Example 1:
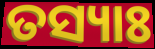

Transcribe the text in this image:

ତସ୍ୟାଃ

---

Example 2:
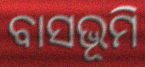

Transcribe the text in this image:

ବାସଭୂମି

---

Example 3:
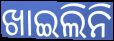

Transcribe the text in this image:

ଖାଇଲିନି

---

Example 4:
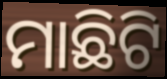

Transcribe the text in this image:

ମାଛିଟି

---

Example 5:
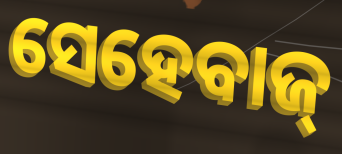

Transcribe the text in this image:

ସେହେବାଜ୍